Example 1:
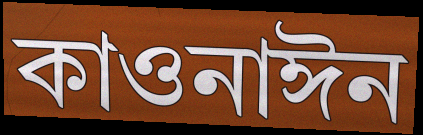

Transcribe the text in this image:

কাওনাঈন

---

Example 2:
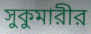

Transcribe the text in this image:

সুকুমারীর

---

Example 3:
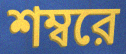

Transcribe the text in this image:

শম্বরে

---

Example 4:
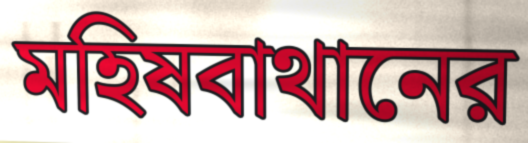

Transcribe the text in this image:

মহিষবাথানের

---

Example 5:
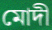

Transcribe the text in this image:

মোদী